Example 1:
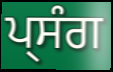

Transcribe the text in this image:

ਪ੍ਸੰਗ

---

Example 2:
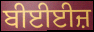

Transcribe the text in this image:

ਬੀਈਈਜ਼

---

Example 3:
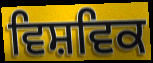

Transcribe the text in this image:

ਵਿਸ਼ਵਿਕ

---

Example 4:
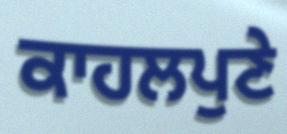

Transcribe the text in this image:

ਕਾਹਲਪੁਣੇ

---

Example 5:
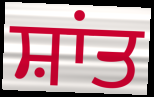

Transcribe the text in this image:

ਸ਼ਾਂਤ